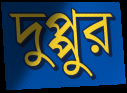
দুপ্পুর